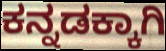
ಕನ್ನಡಕ್ಕಾಗಿ